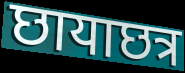
छायाछत्र